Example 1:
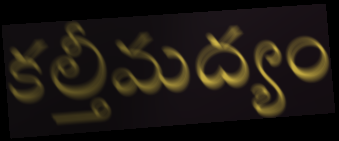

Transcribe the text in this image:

కల్తీమద్యం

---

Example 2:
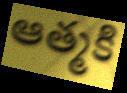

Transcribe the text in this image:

ఆత్మకి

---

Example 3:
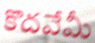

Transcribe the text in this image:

కొదవేమీ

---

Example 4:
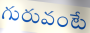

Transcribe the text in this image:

గురువంటే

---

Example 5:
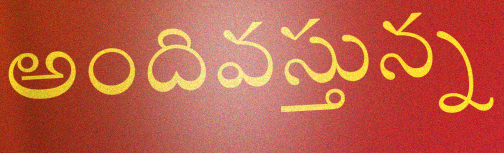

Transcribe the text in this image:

అందివస్తున్న